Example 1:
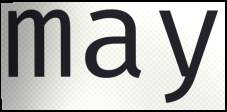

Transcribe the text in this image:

may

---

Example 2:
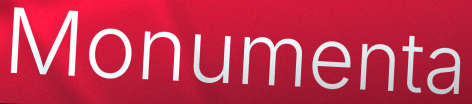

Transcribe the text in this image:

Monumenta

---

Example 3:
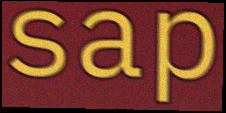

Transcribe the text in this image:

sap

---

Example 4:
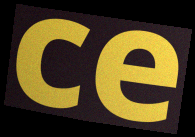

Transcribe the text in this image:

ce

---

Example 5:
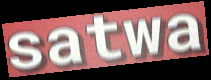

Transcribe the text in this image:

satwa